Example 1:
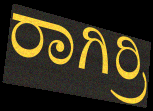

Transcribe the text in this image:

ರಾಗಿರ್ರಿ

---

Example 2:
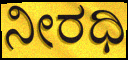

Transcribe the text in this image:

ನೀರಧಿ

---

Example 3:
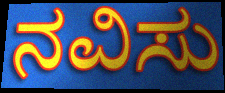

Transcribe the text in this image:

ನವಿಸು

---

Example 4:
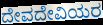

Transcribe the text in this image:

ದೇವದೇವಿಯರ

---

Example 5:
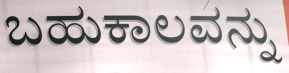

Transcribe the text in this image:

ಬಹುಕಾಲವನ್ನು